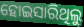
ହୋଇସାରିଥିଲୁ